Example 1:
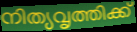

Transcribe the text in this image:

നിത്യവൃത്തിക്ക്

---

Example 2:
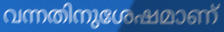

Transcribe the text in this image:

വന്നതിനുശേഷമാണ്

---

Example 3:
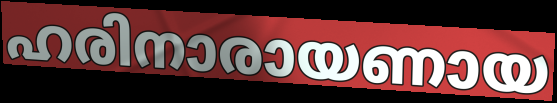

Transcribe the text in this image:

ഹരിനാരായണായ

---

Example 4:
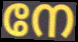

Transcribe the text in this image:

നേ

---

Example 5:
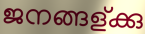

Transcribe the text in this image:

ജനങ്ങള്ക്കു